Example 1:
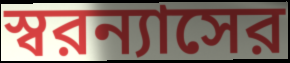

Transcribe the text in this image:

স্বরন্যাসের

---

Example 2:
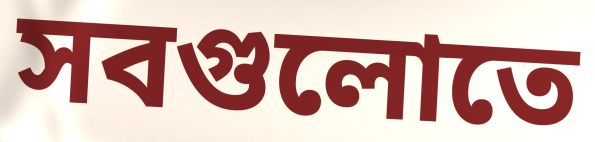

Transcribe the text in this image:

সবগুলোতে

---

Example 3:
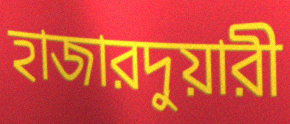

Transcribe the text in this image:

হাজারদুয়ারী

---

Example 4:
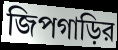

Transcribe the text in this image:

জিপগাড়ির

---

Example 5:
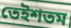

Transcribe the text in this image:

তেইশতম